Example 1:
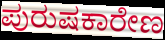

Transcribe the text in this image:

ಪುರುಷಕಾರೇಣ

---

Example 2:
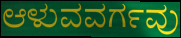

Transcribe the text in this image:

ಆಳುವವರ್ಗವು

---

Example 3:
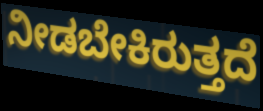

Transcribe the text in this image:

ನೀಡಬೇಕಿರುತ್ತದೆ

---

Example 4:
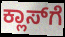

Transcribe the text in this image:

ಕ್ಲಾಸ್‌ಗೆ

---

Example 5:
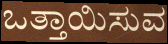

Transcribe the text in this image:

ಒತ್ತಾಯಿಸುವ